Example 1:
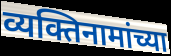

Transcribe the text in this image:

व्यक्तिनामांच्या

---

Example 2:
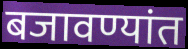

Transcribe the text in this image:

बजावण्यांत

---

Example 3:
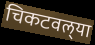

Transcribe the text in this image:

चिकटवल्या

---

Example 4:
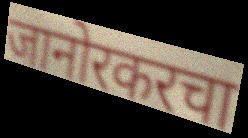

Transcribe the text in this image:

जानोरकरचा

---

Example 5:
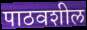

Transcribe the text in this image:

पाठवशील